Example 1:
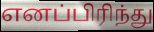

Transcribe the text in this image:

எனப்பிரிந்து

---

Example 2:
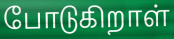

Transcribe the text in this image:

போடுகிறாள்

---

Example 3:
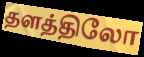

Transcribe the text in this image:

தளத்திலோ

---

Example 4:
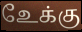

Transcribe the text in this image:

உேக்கு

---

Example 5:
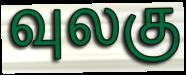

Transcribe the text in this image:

வுலகு